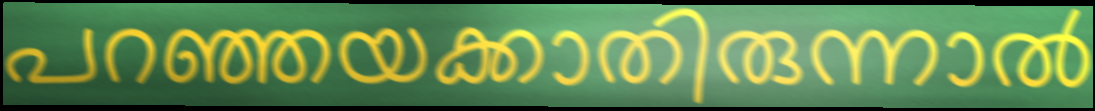
പറഞ്ഞയക്കാതിരുന്നാൽ